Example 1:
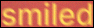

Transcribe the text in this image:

smiled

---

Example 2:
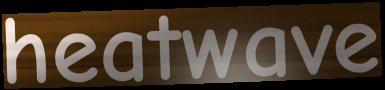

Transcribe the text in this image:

heatwave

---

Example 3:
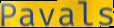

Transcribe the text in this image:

Pavals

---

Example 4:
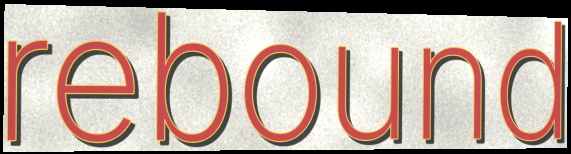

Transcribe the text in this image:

rebound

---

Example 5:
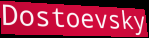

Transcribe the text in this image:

Dostoevsky